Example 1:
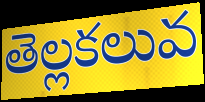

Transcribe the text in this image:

తెల్లకలువ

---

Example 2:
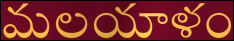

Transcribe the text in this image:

మలయాళం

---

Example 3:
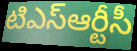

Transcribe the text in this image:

టిఎస్ఆర్టీసీ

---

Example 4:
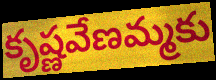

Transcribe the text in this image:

కృష్ణవేణమ్మకు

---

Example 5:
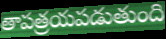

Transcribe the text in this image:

తాపత్రయపడుతుంది